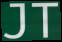
JT